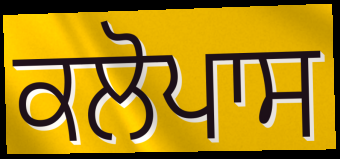
ਕਲੋਪਾਸ